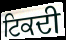
ਟਿਕਦੀ